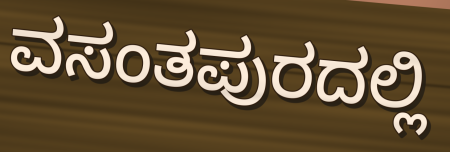
ವಸಂತಪುರದಲ್ಲಿ